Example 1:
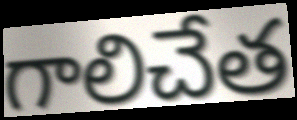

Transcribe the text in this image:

గాలిచేత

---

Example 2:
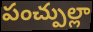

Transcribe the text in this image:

పంచ్పుల్లా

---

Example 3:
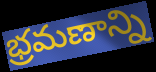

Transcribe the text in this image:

భ్రమణాన్ని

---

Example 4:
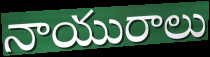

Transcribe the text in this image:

నాయురాలు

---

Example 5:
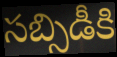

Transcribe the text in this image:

సబ్సిడీకి